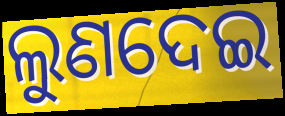
ଲୁଣଦେଇ